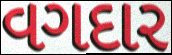
વગદાર